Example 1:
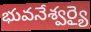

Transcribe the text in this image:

భువనేశ్వర్యై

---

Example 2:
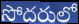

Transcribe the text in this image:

సోదరులో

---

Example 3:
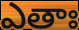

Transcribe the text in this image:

ఎతాః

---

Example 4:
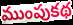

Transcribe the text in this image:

ముంపుకథ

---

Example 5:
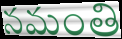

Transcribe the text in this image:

నమంతి